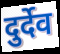
दुर्देव